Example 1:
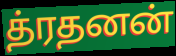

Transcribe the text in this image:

த்ரதனன்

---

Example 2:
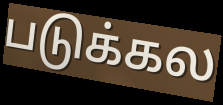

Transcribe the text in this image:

படுக்கல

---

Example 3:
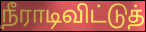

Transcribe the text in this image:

நீராடிவிட்டுத்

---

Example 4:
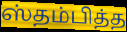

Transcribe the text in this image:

ஸ்தம்பித்த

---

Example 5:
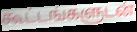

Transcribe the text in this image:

கூட்டங்களுடன்